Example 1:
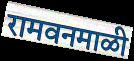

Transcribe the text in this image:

रामवनमाळी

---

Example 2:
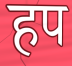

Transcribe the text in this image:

हप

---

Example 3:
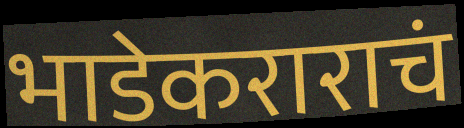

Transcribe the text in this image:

भाडेकराराचं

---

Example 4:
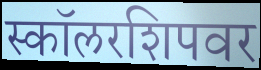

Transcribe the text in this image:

स्कॉलरशिपवर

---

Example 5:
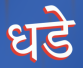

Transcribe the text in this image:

धडे